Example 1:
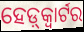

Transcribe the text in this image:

ହେଡ଼୍‌କ୍ୱାର୍ଟର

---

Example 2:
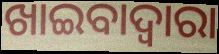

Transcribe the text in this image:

ଖାଇବାଦ୍ଵାରା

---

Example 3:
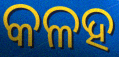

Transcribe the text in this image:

କଳହ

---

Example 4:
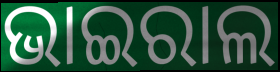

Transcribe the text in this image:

ଭାଇରାଲ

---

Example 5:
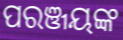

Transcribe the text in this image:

ପରଞ୍ଜୟଙ୍କ